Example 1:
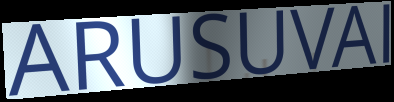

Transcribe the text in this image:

ARUSUVAI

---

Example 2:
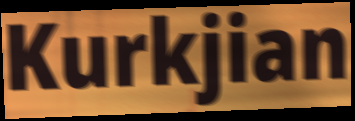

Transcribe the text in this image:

Kurkjian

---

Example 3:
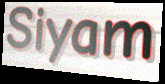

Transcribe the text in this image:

Siyam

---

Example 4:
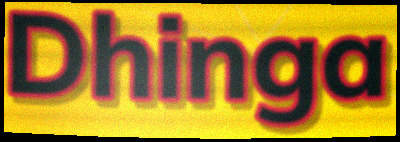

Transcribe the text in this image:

Dhinga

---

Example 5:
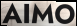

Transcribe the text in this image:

AIMO